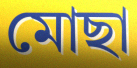
মোছা